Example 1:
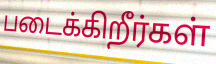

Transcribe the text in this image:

படைக்கிறீர்கள்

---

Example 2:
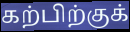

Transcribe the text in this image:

கற்பிற்குக்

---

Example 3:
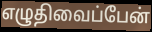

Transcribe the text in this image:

எழுதிவைப்பேன்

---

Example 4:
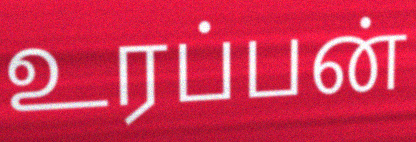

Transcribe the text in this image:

உரப்பன்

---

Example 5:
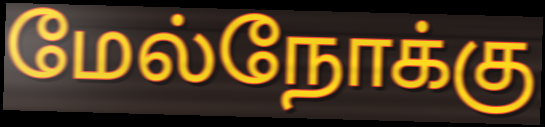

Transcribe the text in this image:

மேல்நோக்கு